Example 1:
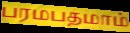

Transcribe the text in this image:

பரமபதமாம்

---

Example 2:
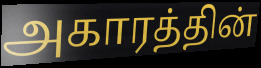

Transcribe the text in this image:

அகாரத்தின்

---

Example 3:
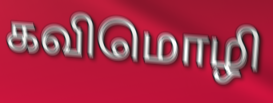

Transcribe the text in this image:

கவிமொழி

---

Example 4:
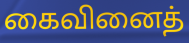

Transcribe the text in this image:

கைவினைத்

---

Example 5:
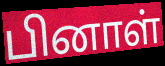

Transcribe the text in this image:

பினாள்